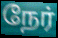
நேர்